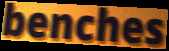
benches